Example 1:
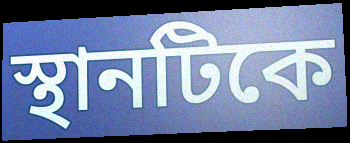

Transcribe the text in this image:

স্থানটিকে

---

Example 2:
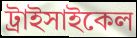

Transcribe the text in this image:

ট্রাইসাইকেল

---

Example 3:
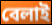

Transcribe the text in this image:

বেলাই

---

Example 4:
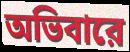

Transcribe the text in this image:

অভিবারে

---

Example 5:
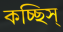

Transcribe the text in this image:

কচ্ছিস্